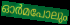
ഓർമപോലും